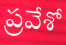
ప్రవేశో